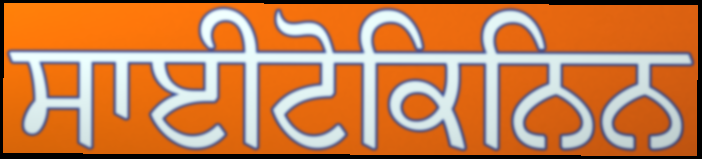
ਸਾਈਟੋਕਿਨਿਨ